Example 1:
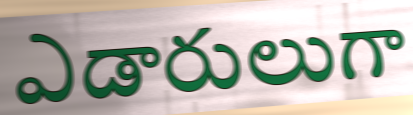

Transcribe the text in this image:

ఎడారులుగా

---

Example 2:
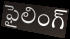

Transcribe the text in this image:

ఫైలింగ్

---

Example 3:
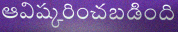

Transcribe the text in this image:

ఆవిష్కరించబడింది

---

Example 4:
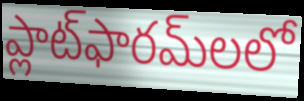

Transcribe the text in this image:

ప్లాట్‌ఫారమ్‌లలో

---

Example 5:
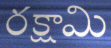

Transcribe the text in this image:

రక్షామి